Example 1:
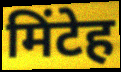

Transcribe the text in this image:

मिंटेह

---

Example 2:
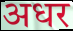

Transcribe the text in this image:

अधर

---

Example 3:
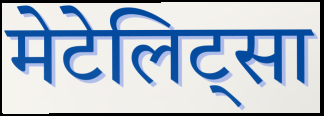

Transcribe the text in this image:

मेटेलिट्सा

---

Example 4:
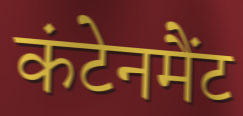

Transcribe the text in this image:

कंटेनमैंट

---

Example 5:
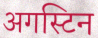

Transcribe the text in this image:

अगस्टिन